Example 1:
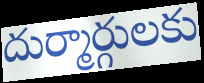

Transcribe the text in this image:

దుర్మార్గులకు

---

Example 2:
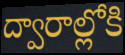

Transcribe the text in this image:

ద్వారాల్లోకి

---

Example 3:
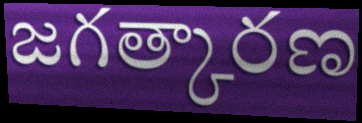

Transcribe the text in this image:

జగత్కారణ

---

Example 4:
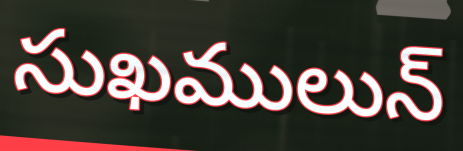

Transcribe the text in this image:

సుఖములున్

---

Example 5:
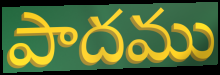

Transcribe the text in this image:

పాదము